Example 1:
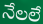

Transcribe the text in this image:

నేలలే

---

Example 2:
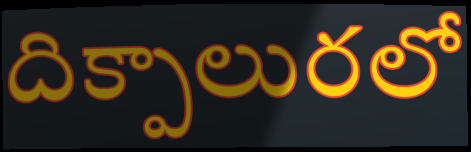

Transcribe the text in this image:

దిక్పాలురలో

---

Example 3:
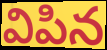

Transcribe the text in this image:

విపిన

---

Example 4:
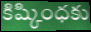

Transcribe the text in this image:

కిష్కింధకు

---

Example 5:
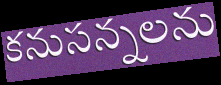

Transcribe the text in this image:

కనుసన్నలను